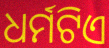
ଧର୍ମଟିଏ